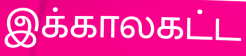
இக்காலகட்ட